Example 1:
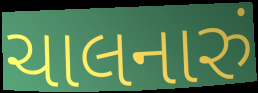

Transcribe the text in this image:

ચાલનારું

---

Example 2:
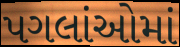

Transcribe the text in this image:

પગલાંઓમાં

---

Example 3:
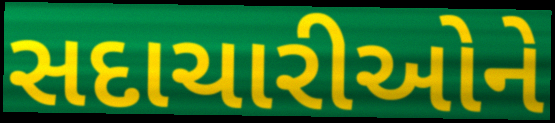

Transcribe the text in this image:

સદાચારીઓને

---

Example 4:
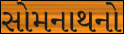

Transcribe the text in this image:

સોમનાથનો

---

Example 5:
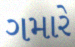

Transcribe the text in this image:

ગમારે